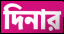
দিনার